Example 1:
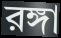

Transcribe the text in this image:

রঙ্গা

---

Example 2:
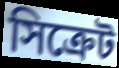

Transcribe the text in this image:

সিক্রেট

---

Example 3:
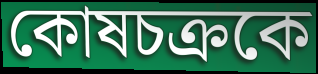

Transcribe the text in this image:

কোষচক্রকে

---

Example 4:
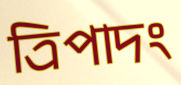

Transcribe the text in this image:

ত্রিপাদং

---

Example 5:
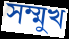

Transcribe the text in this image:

সম্মুখ